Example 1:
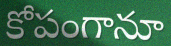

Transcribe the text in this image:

కోపంగానూ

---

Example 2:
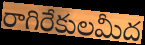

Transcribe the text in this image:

రాగిరేకులమీద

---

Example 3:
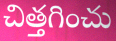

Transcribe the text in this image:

చిత్తగించు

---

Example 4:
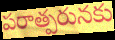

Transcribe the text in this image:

పరాత్పరునకు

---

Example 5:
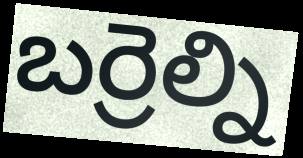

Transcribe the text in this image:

బర్రెల్ని